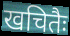
खचितैः